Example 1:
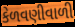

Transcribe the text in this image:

કેળવણીવાળી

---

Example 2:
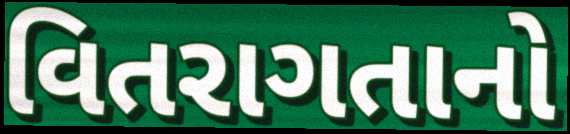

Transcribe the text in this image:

વિતરાગતાનો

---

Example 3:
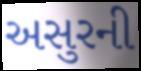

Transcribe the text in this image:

અસુરની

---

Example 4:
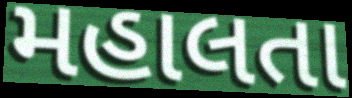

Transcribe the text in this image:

મહાલતા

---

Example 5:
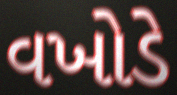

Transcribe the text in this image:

વખોડે